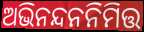
ଅଭିନନ୍ଦନନିମିତ୍ତ